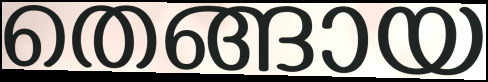
തെങ്ങായ